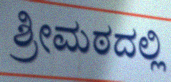
ಶ್ರೀಮಠದಲ್ಲಿ